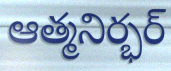
ఆత్మనిర్భర్